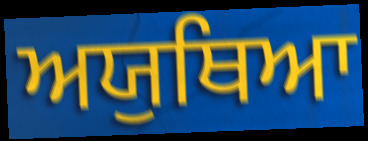
ਅਯੁਥਿਆ